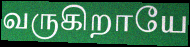
வருகிறாயே